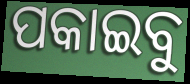
ପକାଇବୁ